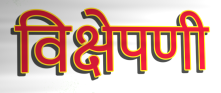
विक्षेपणी